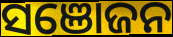
ସଞୋଜନ